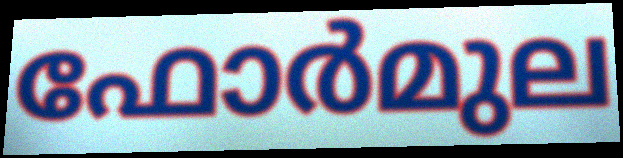
ഫോർമുല